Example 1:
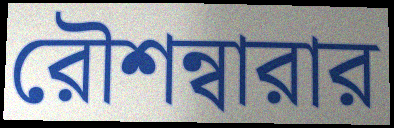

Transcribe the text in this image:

রৌশন্বারার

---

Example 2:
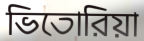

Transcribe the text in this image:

ভিতোরিয়া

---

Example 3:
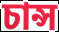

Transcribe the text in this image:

চান্স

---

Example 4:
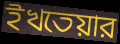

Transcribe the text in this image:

ইখতেয়ার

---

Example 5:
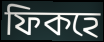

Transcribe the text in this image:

ফিকহে